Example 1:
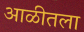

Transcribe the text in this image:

आळीतला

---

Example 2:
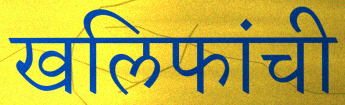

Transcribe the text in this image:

खलिफांची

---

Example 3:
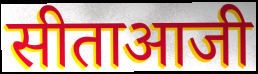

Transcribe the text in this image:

सीताआजी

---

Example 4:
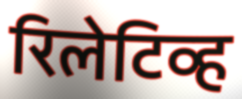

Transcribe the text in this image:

रिलेटिव्ह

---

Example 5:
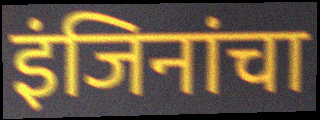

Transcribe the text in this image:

इंजिनांचा